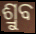
ଶ୍ରୁବ